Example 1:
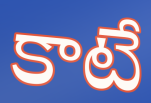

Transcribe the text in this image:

కాటే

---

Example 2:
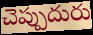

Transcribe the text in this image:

చెప్పుదురు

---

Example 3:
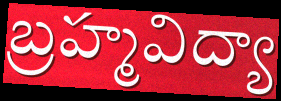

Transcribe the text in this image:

బ్రహ్మవిద్యా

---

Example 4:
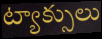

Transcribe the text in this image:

ట్యాక్సులు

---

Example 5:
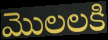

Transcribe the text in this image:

మొలలకి